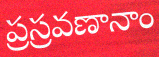
ప్రస్రవణానాం